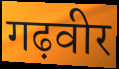
गढ़वीर